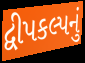
દ્વીપકલ્પનું